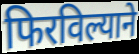
फिरविल्याने